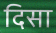
दिसा